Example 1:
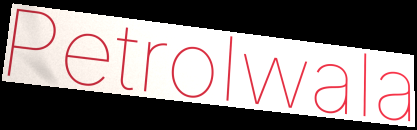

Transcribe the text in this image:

Petrolwala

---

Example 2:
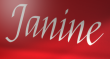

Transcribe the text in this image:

Janine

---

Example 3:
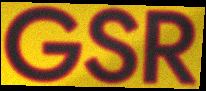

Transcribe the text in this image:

GSR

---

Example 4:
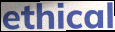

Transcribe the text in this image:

ethical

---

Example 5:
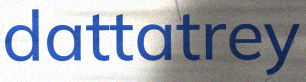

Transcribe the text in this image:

dattatrey